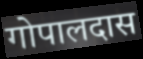
गोपालदास